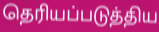
தெரியப்படுத்திய